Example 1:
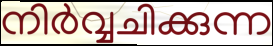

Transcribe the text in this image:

നിർവ്വചിക്കുന്ന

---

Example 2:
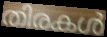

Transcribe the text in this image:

തിരകൾ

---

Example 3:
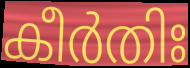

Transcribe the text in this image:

കീർതിഃ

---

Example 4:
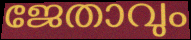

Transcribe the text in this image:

ജേതാവും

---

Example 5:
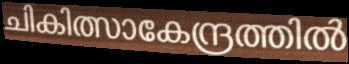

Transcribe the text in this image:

ചികിത്സാകേന്ദ്രത്തിൽ